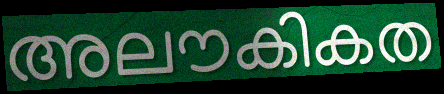
അലൗകികത